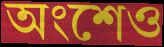
অংশেও